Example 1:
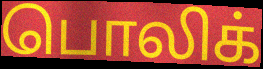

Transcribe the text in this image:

பொலிக்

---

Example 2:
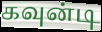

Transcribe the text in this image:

கவுன்டி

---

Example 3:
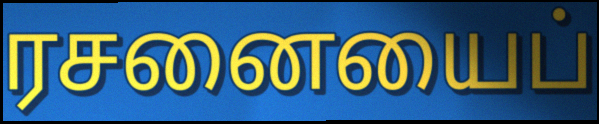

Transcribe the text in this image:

ரசனையைப்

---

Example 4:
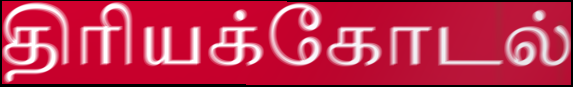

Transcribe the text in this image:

திரியக்கோடல்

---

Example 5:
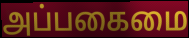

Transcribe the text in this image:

அப்பகைமை